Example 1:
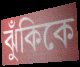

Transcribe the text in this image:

ঝুঁকিকে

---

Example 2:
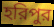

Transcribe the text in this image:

হরিপুর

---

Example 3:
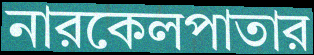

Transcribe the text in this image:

নারকেলপাতার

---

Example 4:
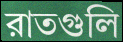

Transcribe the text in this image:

রাতগুলি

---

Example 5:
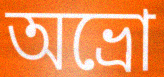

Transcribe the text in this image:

অভ্রো